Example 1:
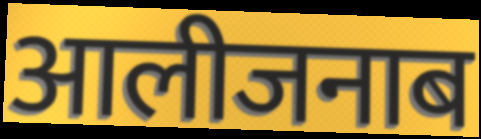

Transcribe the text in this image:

आलीजनाब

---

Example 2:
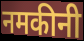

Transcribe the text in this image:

नमकीनी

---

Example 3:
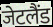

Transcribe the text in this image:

जेटलैंड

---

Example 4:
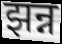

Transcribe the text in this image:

झन्न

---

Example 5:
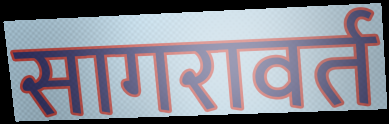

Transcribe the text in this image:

सागरावर्त